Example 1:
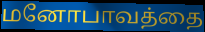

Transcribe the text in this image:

மனோபாவத்தை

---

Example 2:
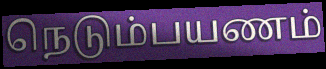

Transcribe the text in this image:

நெடும்பயணம்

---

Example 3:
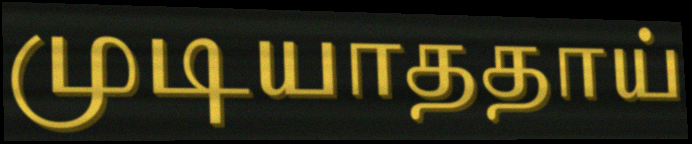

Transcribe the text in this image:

முடியாததாய்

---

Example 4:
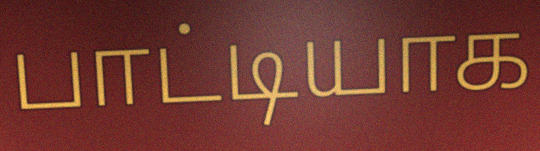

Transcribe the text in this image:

பாட்டியாக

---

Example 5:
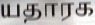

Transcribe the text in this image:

யதாரக